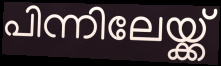
പിന്നിലേയ്ക്ക്